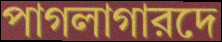
পাগলাগারদে